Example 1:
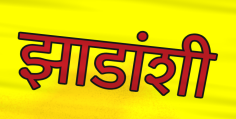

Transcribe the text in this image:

झाडांशी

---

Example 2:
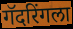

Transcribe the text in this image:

गॅदरिंगला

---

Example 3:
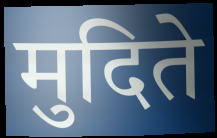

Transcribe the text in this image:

मुदिते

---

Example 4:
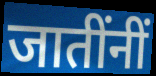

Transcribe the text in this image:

जातींनीं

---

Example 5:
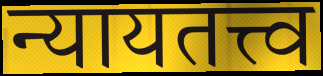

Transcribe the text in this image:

न्यायतत्त्व